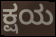
ಕ್ಷಯ